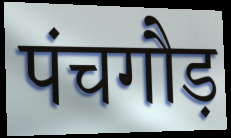
पंचगौड़